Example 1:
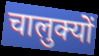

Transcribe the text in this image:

चालुक्यों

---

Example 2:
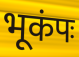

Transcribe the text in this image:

भूकंपः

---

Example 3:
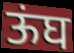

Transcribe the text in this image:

ऊंघ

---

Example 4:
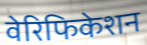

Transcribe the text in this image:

वेरिफिकेशन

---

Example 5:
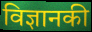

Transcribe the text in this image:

विज्ञानकी